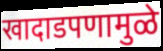
खादाडपणामुळे